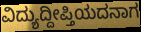
ವಿದ್ಯುದ್ದೀಪ್ತಿಯದನಾಗ